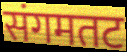
संगमतट